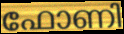
ഫോണി